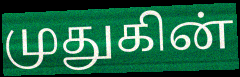
முதுகின்